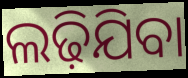
ଲଢ଼ିଯିବା